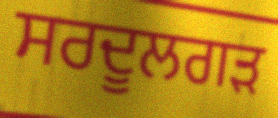
ਸਰਦੂਲਗੜ